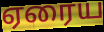
ஏரைய